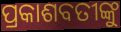
ପ୍ରକାଶବତୀଙ୍କୁ